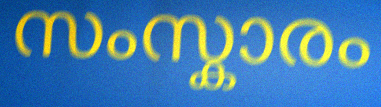
സംസ്കാരം